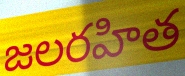
జలరహిత